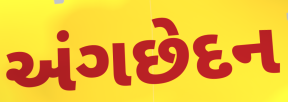
અંગછેદન